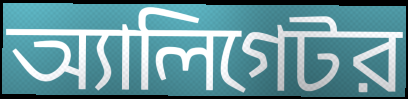
অ্যালিগেটর